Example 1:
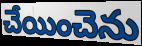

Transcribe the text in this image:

చేయించెను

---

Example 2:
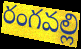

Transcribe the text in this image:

రంగవల్లి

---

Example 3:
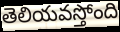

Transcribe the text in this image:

తెలియవస్తోంది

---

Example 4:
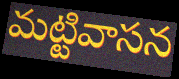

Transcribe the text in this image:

మట్టివాసన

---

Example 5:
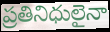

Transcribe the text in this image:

ప్రతినిధులైనా